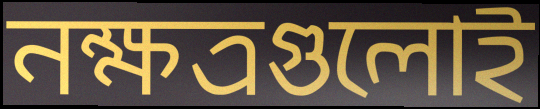
নক্ষত্রগুলোই